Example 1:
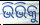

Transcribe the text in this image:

ଭିଭିକୁ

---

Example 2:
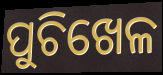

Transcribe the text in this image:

ପୁଚିଖେଳ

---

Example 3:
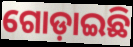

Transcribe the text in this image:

ଗୋଡ଼ାଇଛି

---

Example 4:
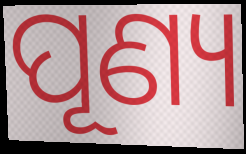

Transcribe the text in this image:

ପୂଣ୍ୟ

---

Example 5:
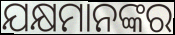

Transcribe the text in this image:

ଯକ୍ଷମାନଙ୍କର